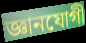
জ্ঞানযোগী